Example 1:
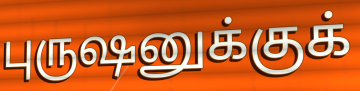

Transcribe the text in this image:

புருஷனுக்குக்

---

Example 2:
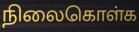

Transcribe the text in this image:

நிலைகொள்க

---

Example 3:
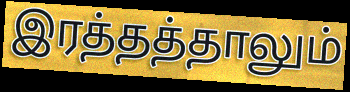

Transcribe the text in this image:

இரத்தத்தாலும்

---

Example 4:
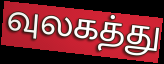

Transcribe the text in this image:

வுலகத்து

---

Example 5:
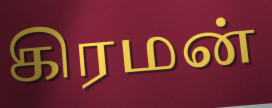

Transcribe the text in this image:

கிரமன்